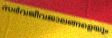
സർവജീവജാലങ്ങളെയും